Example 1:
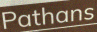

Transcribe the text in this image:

Pathans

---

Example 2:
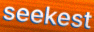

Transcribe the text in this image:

seekest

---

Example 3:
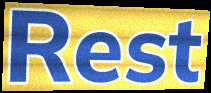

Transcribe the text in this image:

Rest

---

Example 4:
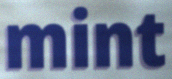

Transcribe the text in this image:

mint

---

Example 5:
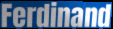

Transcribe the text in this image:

Ferdinand